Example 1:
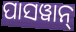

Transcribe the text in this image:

ପାସୱାନ୍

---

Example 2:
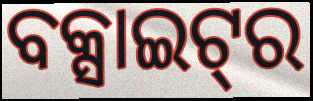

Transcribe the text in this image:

ବକ୍ସାଇଟ୍‌ର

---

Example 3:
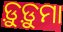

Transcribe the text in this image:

ଡ଼ୁଡ଼ୁମା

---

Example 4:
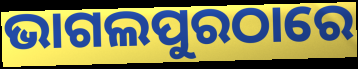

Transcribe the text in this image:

ଭାଗଲପୁରଠାରେ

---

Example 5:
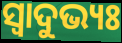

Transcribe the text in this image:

ସ୍ବାଦୁଭ୍ୟଃ